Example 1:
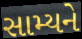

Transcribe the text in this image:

સામ્યને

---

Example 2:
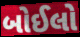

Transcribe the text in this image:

બોઈલો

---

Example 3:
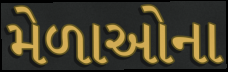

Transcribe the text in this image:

મેળાઓના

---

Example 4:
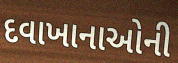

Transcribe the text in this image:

દવાખાનાઓની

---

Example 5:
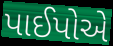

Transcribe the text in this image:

પાઈપોએ